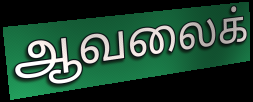
ஆவலைக்